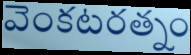
వెంకటరత్నం